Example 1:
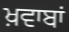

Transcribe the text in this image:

ਖ਼ਵਾਬਾਂ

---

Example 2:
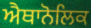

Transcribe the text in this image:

ਐਥਾਨੋਲਿਕ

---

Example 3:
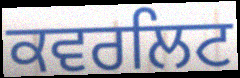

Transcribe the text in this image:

ਕਵਰਲਿਟ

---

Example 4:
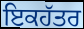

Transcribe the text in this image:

ਇਕਹੱਤਰ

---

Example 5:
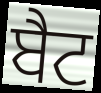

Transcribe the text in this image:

ਬੈਟ